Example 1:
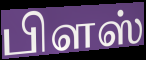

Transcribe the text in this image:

பிளஸ்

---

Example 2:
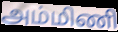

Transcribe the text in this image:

அம்மிணி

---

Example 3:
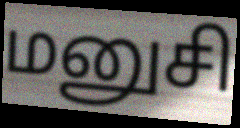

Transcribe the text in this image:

மனுசி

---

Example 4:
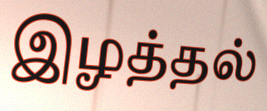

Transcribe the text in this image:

இழத்தல்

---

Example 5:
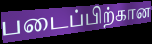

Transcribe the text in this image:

படைப்பிற்கான